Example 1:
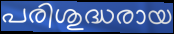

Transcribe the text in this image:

പരിശുദ്ധരായ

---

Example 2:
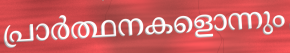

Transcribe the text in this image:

പ്രാർത്ഥനകളൊന്നും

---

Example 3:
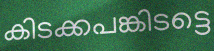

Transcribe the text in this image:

കിടക്കപങ്കിടട്ടെ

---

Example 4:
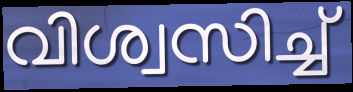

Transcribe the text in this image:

വിശ്വസിച്ച്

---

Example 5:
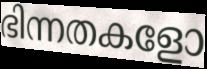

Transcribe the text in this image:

ഭിന്നതകളോ